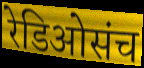
रेडिओसंच